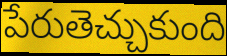
పేరుతెచ్చుకుంది